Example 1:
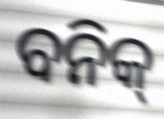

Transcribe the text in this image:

ବନିକ୍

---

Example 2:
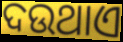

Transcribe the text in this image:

ଦଉଥାଏ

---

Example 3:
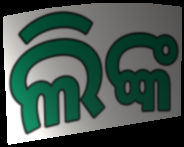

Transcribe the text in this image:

ଲିଙ୍କ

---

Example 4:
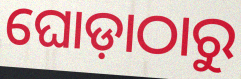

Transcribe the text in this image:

ଘୋଡ଼ାଠାରୁ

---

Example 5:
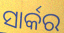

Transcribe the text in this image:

ସାର୍କର